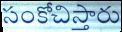
సంకోచిస్తారు